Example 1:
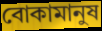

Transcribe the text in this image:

বোকামানুষ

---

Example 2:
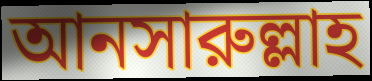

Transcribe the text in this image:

আনসারুল্লাহ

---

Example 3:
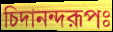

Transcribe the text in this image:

চিদানন্দরূপঃ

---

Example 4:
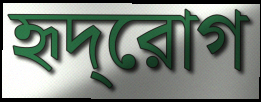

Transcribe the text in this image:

হৃদ্‌রোগ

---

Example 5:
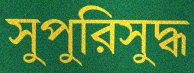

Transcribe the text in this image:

সুপুরিসুদ্ধ